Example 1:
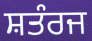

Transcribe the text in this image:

ਸ਼ਤੰਰਜ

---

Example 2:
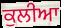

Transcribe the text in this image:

ਕੁਲੀਆ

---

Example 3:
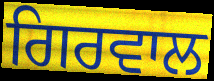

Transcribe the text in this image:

ਗਿਰਵਾਲ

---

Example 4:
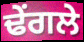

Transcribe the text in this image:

ਢੇਂਗਲੇ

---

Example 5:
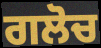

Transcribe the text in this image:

ਗਲੋਚ